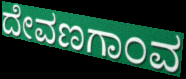
ದೇವಣಗಾಂವ